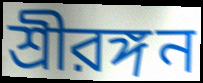
শ্রীরঙ্গন